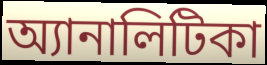
অ্যানালিটিকা